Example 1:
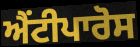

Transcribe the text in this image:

ਐਂਟੀਪਾਰੋਸ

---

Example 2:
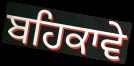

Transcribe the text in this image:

ਬਹਿਕਾਵੇ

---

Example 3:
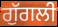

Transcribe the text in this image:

ਗੁੱਗਲੀ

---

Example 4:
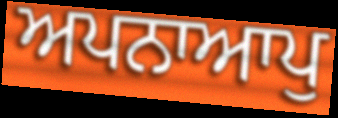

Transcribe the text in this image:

ਅਪਨਾਆਪੁ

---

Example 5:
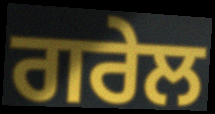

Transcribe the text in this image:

ਗਰੇਲ